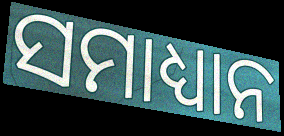
ସମାଧ୍ୟାନ